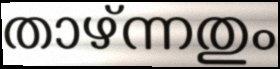
താഴ്ന്നതും